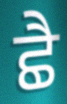
ਛੈ